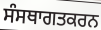
ਸੰਸਥਾਗਤਕਰਨ